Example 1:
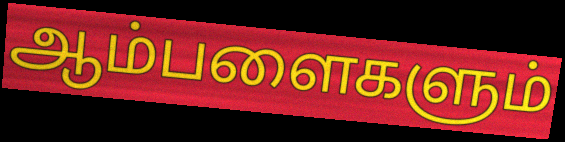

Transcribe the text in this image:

ஆம்பளைகளும்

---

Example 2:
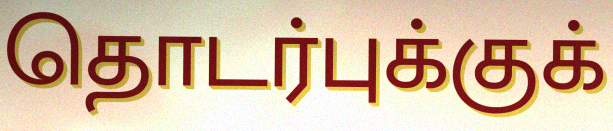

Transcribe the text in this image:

தொடர்புக்குக்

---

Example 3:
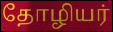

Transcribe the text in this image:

தோழியர்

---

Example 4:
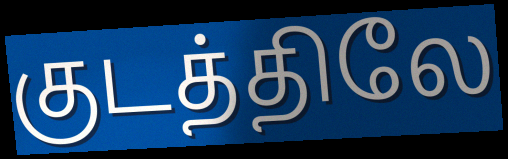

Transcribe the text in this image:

குடத்திலே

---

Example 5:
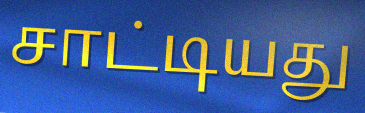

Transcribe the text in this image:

சாட்டியது